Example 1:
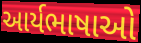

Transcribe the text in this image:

આર્યભાષાઓ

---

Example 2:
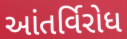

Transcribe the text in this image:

આંતર્વિરોધ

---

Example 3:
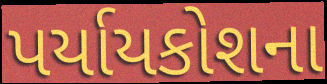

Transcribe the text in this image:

પર્યાયકોશના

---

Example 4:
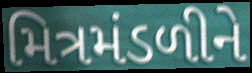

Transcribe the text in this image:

મિત્રમંડળીને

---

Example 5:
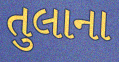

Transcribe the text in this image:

તુલાના